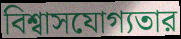
বিশ্বাসযোগ্যতার